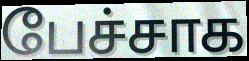
பேச்சாக